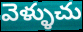
వెళ్ళుచు